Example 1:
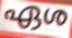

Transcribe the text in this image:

ഏശ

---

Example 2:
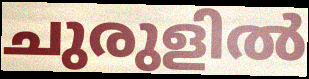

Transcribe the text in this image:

ചുരുളിൽ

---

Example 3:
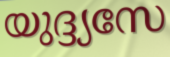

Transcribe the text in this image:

യുദ്ദ്യസേ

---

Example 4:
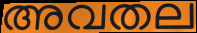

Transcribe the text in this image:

അവതല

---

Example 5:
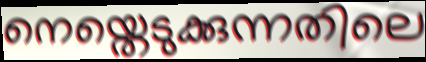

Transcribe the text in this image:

നെയ്തെടുക്കുന്നതിലെ